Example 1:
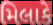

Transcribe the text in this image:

મિલાકે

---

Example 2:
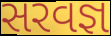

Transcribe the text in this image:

સરવજ્ઞ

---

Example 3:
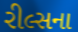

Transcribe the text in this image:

રીલ્સના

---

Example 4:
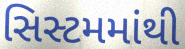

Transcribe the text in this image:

સિસ્ટમમાંથી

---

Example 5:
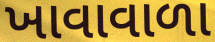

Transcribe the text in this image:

ખાવાવાળા